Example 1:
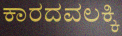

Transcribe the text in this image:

ಕಾರದವಲಕ್ಕಿ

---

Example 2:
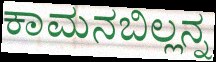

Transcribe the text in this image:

ಕಾಮನಬಿಲ್ಲನ್ನ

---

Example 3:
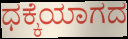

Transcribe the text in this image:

ಧಕ್ಕೆಯಾಗದ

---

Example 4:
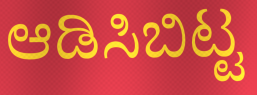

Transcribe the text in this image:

ಆಡಿಸಿಬಿಟ್ಟ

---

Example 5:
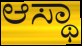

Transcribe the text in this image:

ಆಸ್ಥಾ